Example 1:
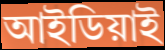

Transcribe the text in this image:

আইডিয়াই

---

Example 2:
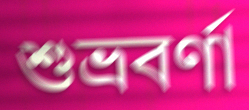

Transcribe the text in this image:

শুভ্রবর্ণা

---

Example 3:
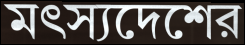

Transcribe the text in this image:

মৎস্যদেশের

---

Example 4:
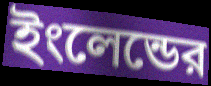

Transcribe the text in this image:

ইংলেন্ডের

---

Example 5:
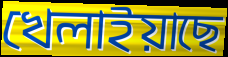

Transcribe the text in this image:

খেলাইয়াছে